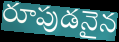
రూపుడనైన